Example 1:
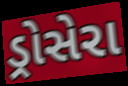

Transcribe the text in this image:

ડ્રોસેરા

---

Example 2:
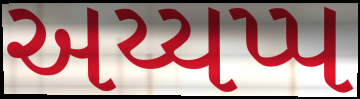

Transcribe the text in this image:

અય્યપ્પ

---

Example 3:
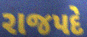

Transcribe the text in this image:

રાજપદે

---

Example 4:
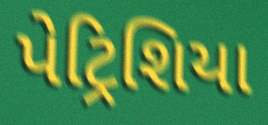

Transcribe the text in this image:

પેટ્રિશિયા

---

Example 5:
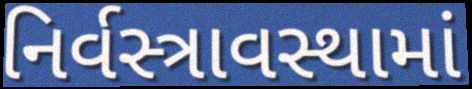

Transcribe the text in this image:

નિર્વસ્ત્રાવસ્થામાં